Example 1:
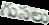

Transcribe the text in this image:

గుసలు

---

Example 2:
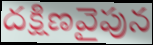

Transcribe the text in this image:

దక్షిణవైపున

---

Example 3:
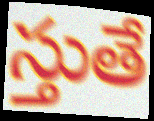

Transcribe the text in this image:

స్తుతే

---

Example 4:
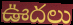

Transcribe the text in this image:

ఊదలు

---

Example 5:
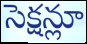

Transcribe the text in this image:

సెక్షన్లూ